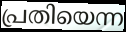
പ്രതിയെന്ന